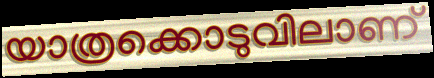
യാത്രക്കൊടുവിലാണ്